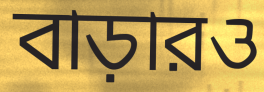
বাড়ারও